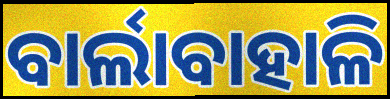
ବାର୍ଲାବାହାଳି